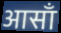
आसाँ